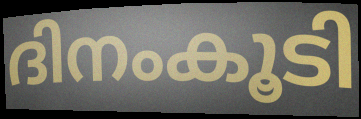
ദിനംകൂടി